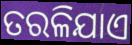
ତରଳିଯାଏ